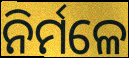
ନିର୍ମଳେ